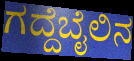
ಗದ್ದೆಬೈಲಿನ